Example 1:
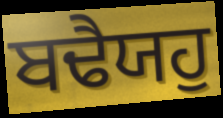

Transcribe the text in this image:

ਬਢੈਯਹੁ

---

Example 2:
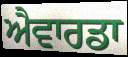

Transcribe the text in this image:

ਐਵਾਰਡਾ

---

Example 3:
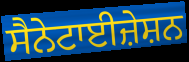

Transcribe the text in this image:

ਸੈਨੇਟਾਈਜ਼ੇਸ਼ਨ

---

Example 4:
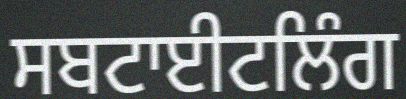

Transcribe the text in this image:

ਸਬਟਾਈਟਲਿੰਗ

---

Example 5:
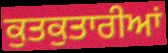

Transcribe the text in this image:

ਕੁਤਕੁਤਾਰੀਆਂ